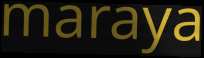
maraya